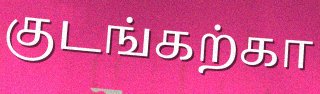
குடங்கற்கா